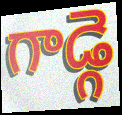
గాడ్గె